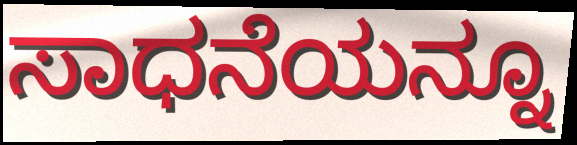
ಸಾಧನೆಯನ್ನೂ